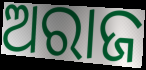
ଅରାଜ